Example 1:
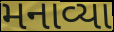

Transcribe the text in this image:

મનાવ્યા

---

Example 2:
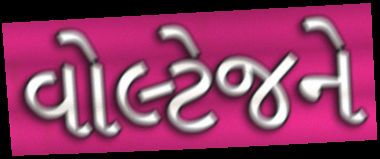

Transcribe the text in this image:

વોલ્ટેજને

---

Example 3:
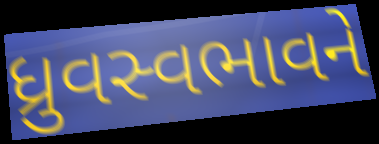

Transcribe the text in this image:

ધ્રુવસ્વભાવને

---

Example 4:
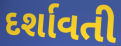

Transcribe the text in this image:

દર્શાવતી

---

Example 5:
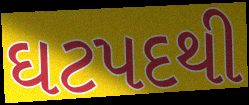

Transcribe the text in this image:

ઘટપદથી